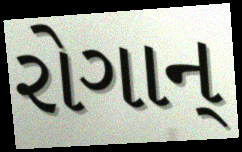
રોગાન્